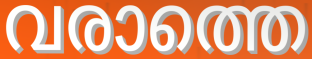
വരാത്തെ